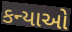
કન્યાઓ